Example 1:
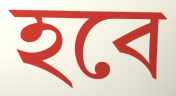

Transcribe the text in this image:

হবে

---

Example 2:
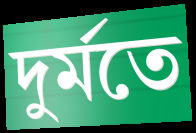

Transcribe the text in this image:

দুর্মতে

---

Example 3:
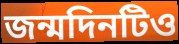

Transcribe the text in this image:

জন্মদিনটিও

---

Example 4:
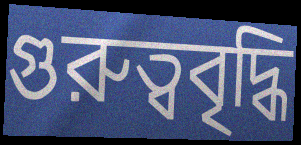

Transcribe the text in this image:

গুরুত্ববৃদ্ধি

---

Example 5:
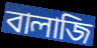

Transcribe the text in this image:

বালাজি